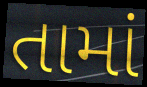
તામાં